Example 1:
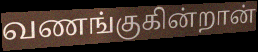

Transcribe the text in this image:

வணங்குகின்றான்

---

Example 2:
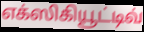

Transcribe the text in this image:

எக்ஸிகியூட்டிவ்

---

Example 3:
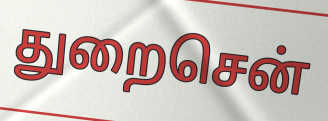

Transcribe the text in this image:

துறைசென்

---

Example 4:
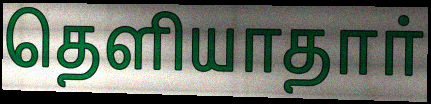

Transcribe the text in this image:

தெளியாதார்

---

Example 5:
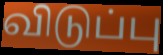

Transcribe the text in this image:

விடுப்பு